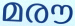
മരൗ